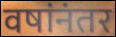
वषांनंतर